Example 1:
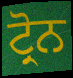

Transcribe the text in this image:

ਟ੍ਰੋਨ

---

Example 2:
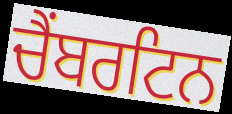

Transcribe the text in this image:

ਚੈਂਬਰਟਿਨ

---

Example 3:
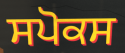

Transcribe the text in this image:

ਸਪੋਕਸ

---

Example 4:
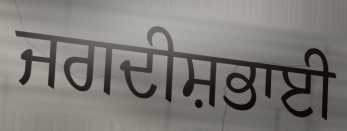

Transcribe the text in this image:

ਜਗਦੀਸ਼ਭਾਈ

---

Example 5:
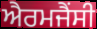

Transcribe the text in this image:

ਐਰਮਜੈਂਸੀ